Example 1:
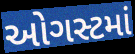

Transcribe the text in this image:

ઓગસ્ટમાં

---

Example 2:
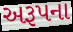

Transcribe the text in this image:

અરૂપના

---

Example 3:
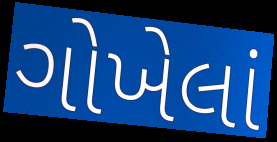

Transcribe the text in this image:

ગોખેલાં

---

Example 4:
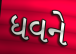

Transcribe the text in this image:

ધવને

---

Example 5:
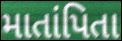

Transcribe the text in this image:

માતાંપિતા